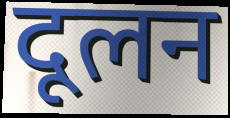
दूलन